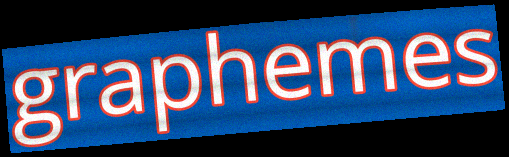
graphemes